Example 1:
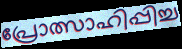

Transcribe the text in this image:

പ്രോത്സാഹിപ്പിച്ച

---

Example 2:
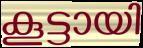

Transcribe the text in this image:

കൂട്ടായി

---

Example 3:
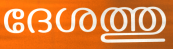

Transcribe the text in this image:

ദേശത്തു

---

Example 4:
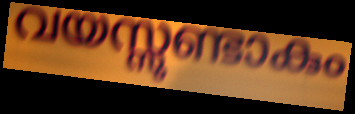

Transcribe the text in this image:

വയസ്സുണ്ടാകും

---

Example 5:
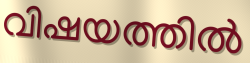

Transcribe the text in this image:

വിഷയത്തിൽ